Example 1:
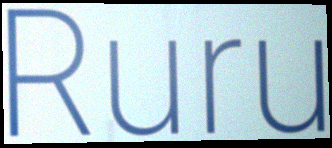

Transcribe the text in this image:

Ruru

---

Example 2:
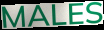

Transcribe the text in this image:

MALES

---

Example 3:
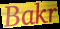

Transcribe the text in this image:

Bakr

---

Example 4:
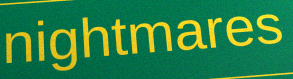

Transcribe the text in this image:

nightmares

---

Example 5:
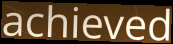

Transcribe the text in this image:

achieved